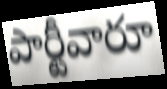
పార్టీవారూ